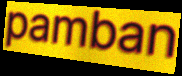
pamban